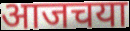
आजचया